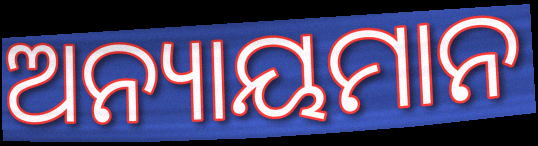
ଅନ୍ୟାୟମାନ